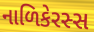
નાળિકેરસ્સ